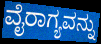
ವೈರಾಗ್ಯವನ್ನು